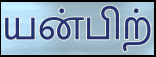
யன்பிற்